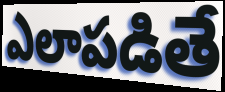
ఎలాపడితే